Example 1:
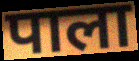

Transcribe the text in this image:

पाला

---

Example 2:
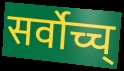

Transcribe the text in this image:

सर्वोच्च्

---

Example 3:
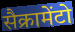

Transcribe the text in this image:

सैक्रामेंटो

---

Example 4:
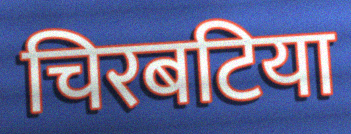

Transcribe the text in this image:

चिरबटिया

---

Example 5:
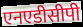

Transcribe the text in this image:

एनएडीसीपी